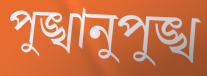
পুঙ্খানুপুঙ্খ